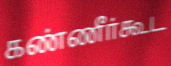
கண்ணீர்கூட